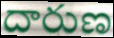
దారుణ